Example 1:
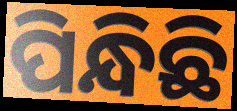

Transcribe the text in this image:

ପିନ୍ଧିଛି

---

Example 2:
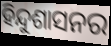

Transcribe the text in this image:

ହିନ୍ଦୁଶାସନର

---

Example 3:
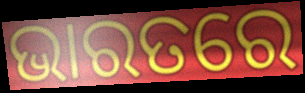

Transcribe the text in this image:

ଭାରତରେ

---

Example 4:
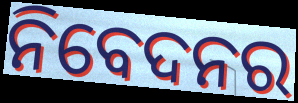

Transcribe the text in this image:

ନିବେଦନର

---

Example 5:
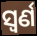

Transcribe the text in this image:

ସ୍ୱର୍ଣ